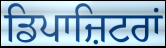
ਡਿਪਾਜ਼ਿਟਰਾਂ